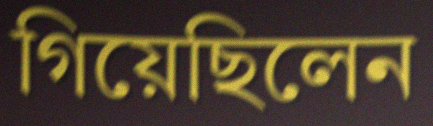
গিয়েছিলেন